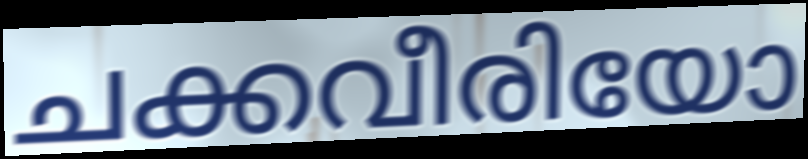
ചക്കവീരിയോ